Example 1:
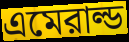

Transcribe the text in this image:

এমেরাল্ড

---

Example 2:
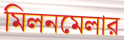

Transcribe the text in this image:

মিলনমেলার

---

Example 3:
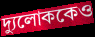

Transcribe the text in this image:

দ্যুলোককেও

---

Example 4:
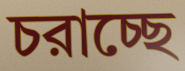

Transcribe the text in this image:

চরাচ্ছে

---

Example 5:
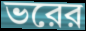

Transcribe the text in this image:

ভরের